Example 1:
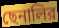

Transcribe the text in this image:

ছেনালির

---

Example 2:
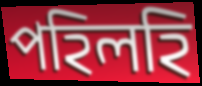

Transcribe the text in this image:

পহিলহি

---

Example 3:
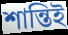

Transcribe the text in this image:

শান্তিই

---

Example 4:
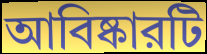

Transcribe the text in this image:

আবিষ্কারটি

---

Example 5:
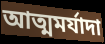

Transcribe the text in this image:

আত্মমর্যাদা